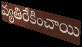
వ్యతిరేకించాయి